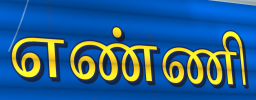
எண்ணி